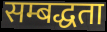
सम्‍बद्धता